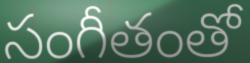
సంగీతంతో